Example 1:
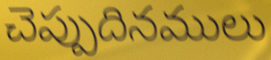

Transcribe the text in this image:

చెప్పుదినములు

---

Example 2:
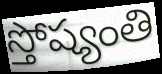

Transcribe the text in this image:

స్తోష్యంతి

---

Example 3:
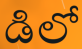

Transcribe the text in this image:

డిలో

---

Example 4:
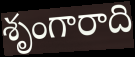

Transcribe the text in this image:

శృంగారాది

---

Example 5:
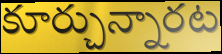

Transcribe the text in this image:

కూర్చున్నారట